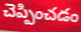
చెప్పించడం